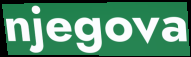
njegova